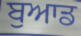
ਬੁਆਡ